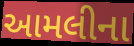
આમલીના